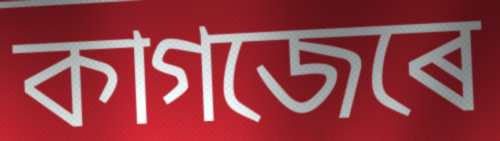
কাগজেৰে